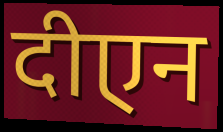
दीएन